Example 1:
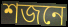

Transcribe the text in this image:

শজনে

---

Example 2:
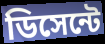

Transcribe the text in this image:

ডিসেন্টে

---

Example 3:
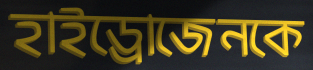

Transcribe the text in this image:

হাইড্রোজেনকে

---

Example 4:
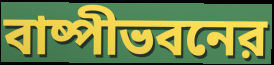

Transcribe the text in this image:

বাষ্পীভবনের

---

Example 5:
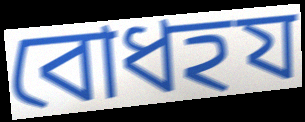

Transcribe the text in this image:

বোধহয